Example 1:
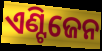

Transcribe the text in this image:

ଏଣ୍ଟିଜେନ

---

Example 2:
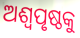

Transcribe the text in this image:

ଅଶ୍ୱପୃଷ୍ଠକୁ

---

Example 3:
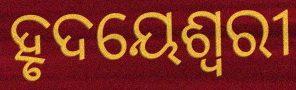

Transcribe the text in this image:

ହୃଦୟେଶ୍ୱରୀ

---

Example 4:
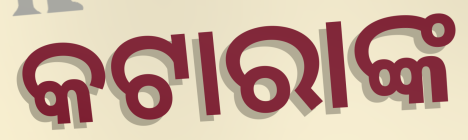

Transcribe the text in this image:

କଟାରାଙ୍କ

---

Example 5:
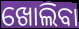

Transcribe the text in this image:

ଖୋଲିବା